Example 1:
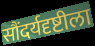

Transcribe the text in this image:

सौंदर्यदृष्टीला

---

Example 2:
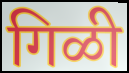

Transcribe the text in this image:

गिळी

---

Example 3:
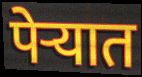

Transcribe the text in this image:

पेऱ्यात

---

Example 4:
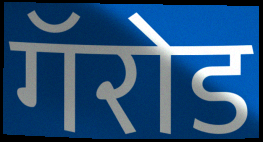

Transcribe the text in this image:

गॅरोड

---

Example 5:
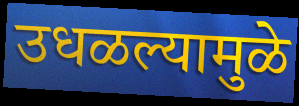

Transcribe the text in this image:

उधळल्यामुळे